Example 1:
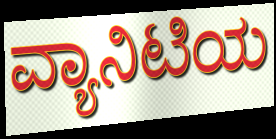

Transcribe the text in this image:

ವ್ಯಾನಿಟಿಯ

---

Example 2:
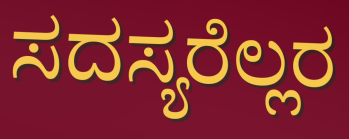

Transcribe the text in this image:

ಸದಸ್ಯರೆಲ್ಲರ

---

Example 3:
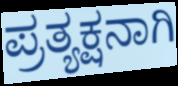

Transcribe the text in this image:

ಪ್ರತ್ಯಕ್ಷನಾಗಿ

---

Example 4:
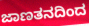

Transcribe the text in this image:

ಜಾಣತನದಿಂದ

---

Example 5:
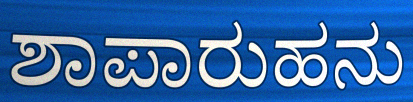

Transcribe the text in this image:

ಶಾಪಾರುಹನು